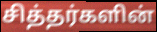
சித்தர்களின்